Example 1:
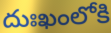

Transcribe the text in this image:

దుఃఖంలోకి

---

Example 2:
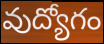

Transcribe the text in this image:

వుద్యోగం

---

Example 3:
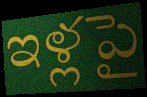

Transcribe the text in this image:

ఇళ్లపై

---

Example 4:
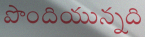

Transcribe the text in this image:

పొందియున్నది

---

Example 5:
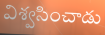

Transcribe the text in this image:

విశ్వసించాడు